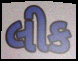
લીક